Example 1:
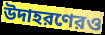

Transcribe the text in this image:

উদাহরণেরও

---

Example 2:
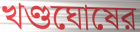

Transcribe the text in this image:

খণ্ডঘোষের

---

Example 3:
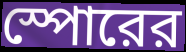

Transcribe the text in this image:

স্পোরের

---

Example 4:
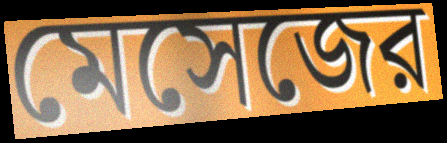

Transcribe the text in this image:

মেসেজের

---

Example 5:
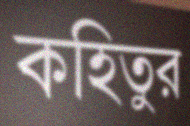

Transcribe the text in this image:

কহিতুর